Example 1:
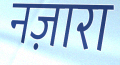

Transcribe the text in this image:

नज़ारा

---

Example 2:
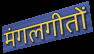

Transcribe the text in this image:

मंगलगीतों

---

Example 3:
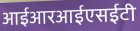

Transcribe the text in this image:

आईआरआईएसईटी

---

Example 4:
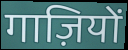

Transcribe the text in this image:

गाज़ियों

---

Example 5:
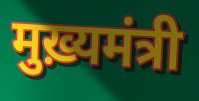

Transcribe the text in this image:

मुख़्यमंत्री